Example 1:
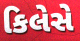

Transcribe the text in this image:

કિલેસે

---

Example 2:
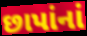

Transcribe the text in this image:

છાપાંનાં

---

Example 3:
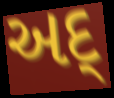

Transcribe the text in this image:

અદ્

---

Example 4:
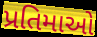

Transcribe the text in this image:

પ્રતિમાઓ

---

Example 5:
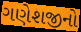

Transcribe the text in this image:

ગણેશજીનો